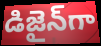
డిజైన్‌గా